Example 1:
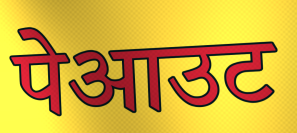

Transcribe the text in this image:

पेआउट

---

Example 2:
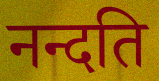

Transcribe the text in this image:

नन्दति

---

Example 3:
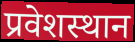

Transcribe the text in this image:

प्रवेशस्थान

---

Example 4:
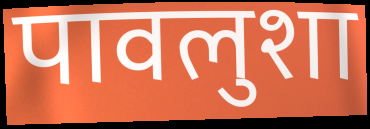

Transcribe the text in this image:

पावलुशा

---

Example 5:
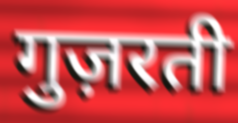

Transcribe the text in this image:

गुज़रती